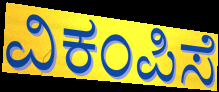
ವಿಕಂಪಿಸೆ